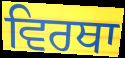
ਵਿਰਥਾ